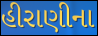
હીરાણીના